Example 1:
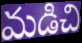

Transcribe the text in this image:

మడిచి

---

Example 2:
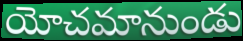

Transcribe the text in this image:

యోచమానుండు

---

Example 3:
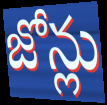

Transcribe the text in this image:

జోన్లు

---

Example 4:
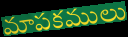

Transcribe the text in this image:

మాపకములు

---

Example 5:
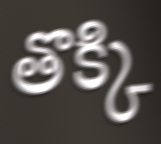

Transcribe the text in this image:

తొక్కి